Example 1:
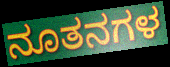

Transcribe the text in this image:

ನೂತನಗಳ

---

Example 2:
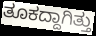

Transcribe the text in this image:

ತೂಕದ್ದಾಗಿತ್ತು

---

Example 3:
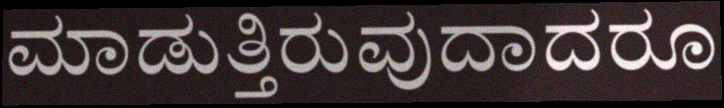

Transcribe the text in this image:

ಮಾಡುತ್ತಿರುವುದಾದರೂ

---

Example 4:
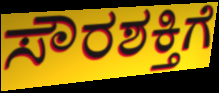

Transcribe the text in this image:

ಸೌರಶಕ್ತಿಗೆ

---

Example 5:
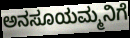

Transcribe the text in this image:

ಅನಸೂಯಮ್ಮನಿಗೆ